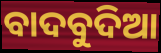
ବାଦବୁଦିଆ